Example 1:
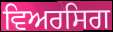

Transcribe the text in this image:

ਵਿਅਰਸਿਗ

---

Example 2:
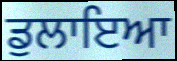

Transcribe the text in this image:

ਡੁਲਾਇਆ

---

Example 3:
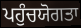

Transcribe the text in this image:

ਪਹੁੰਚਯੋਗਤਾ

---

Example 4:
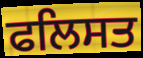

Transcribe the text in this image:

ਫਲਿਸਤ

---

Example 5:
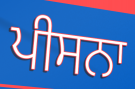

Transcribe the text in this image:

ਪੀਸਨਾ